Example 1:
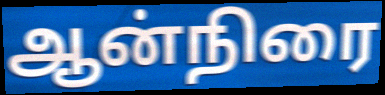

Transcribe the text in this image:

ஆன்நிரை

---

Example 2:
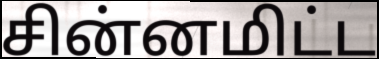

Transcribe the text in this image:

சின்னமிட்ட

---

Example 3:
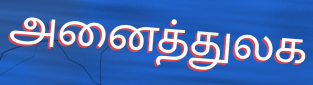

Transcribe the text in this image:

அனைத்துலக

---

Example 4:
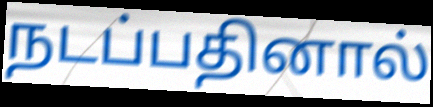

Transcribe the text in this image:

நடப்பதினால்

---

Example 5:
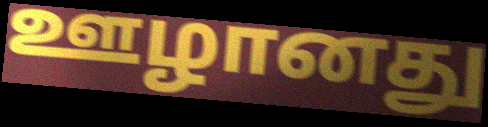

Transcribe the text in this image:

ஊழானது